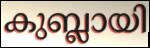
കുബ്ലായി